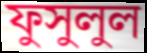
ফুসুলুল